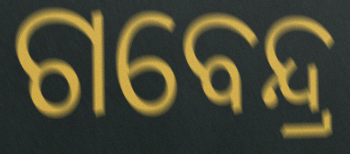
ଗବେନ୍ଦ୍ର